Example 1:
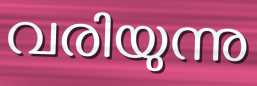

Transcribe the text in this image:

വരിയുന്നു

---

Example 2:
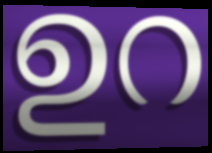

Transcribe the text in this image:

ഉറ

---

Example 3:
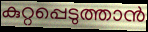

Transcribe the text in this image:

കുറ്റപ്പെടുത്താൻ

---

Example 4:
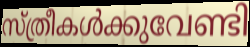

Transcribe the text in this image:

സ്ത്രീകൾക്കുവേണ്ടി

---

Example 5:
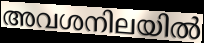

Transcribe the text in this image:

അവശനിലയിൽ